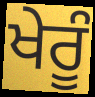
ਖੇਰੂੰ